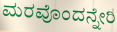
ಮರವೊಂದನ್ನೇರಿ